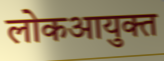
लोकआयुक्त